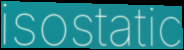
isostatic